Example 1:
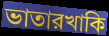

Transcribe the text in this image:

ভাতারখাকি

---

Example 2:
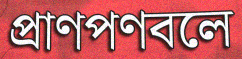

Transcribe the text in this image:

প্রাণপণবলে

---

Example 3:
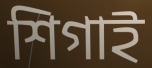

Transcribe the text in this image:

শিগাই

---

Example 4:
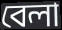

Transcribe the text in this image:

বেলা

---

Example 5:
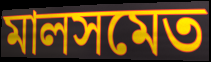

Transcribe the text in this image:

মালসমেত